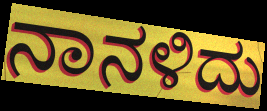
ನಾನಳಿದು